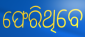
ଫେରିଥିବେ